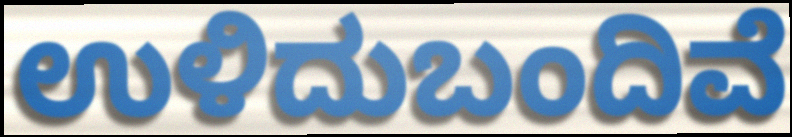
ಉಳಿದುಬಂದಿವೆ